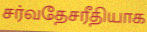
சர்வதேசரீதியாக